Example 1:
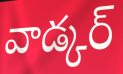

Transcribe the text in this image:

వాడ్కర్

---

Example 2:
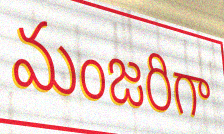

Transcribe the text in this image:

మంజరిగా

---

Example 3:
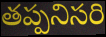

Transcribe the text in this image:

తప్పనిసరి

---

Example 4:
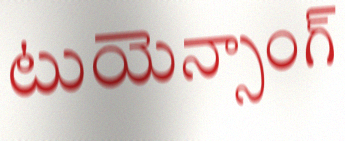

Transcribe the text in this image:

టుయెన్సాంగ్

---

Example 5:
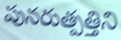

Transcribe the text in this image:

పునరుత్పత్తిని